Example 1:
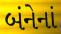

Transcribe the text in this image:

બંનેનાં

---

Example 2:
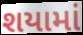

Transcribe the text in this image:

શયામાં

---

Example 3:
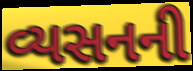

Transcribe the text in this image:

વ્યસનની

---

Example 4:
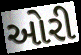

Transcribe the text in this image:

ઓરી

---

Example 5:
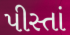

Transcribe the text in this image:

પીસ્તાં